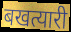
बखत्यारी